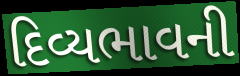
દિવ્યભાવની